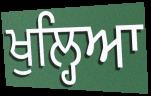
ਖੁਲ੍ਹਿਆ